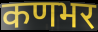
कणभर